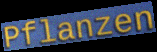
Pflanzen